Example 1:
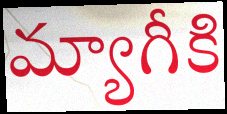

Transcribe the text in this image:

మ్యాగీకి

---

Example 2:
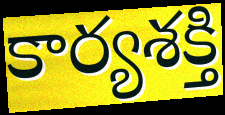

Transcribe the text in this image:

కార్యశక్తి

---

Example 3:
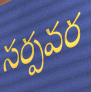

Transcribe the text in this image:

సర్పవర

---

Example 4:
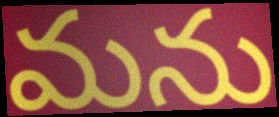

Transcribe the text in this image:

మను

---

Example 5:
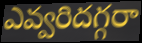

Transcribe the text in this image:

ఎవ్వరిదగ్గరా